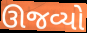
ઊજવ્યો